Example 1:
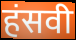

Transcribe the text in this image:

हंसवी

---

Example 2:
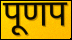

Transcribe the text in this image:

पूणप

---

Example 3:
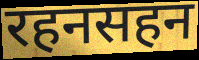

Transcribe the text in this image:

रहनसहन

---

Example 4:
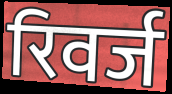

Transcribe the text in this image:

रिवर्ज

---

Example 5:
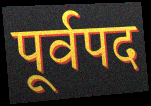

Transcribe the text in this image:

पूर्वपद